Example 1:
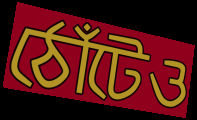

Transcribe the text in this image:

ঠোঁটেও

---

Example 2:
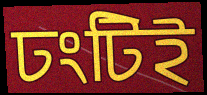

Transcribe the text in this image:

ঢংটিই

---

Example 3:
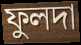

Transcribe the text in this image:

ফুলদা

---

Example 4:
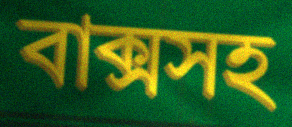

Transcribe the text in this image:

বাক্সসহ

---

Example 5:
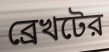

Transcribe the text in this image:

ব্রেখটের